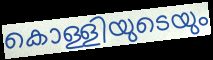
കൊള്ളിയുടെയും